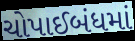
ચોપાઈબંધમાં